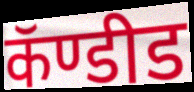
कॅण्डीड